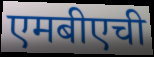
एमबीएची